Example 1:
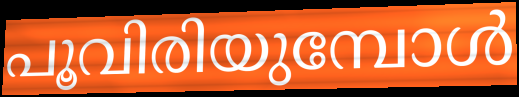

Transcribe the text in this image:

പൂവിരിയുമ്പോൾ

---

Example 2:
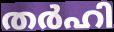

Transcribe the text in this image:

തർഹി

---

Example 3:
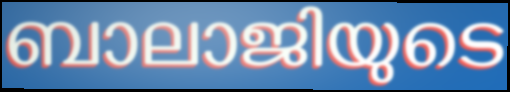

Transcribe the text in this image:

ബാലാജിയുടെ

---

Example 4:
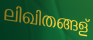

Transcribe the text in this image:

ലിഖിതങ്ങള്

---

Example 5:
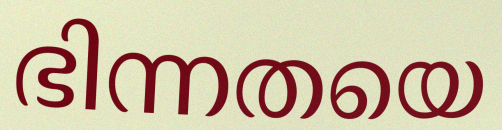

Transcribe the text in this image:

ഭിന്നതയെ